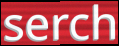
serch